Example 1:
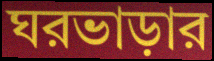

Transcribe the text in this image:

ঘরভাড়ার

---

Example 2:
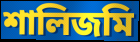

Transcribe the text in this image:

শালিজমি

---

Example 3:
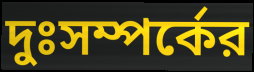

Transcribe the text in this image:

দুঃসম্পর্কের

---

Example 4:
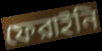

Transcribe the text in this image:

ফেরাইনি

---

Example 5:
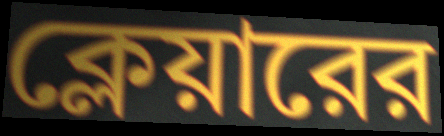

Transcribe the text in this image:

ক্লেয়ারের